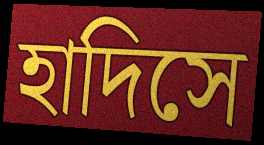
হাদিসে